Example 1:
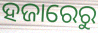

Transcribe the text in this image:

ହଜାରେରୁ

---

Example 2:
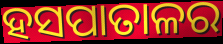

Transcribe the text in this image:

ହସପାତାଳର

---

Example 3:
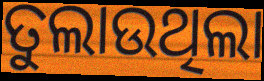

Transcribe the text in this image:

ତୁଲାଉଥିଲା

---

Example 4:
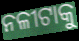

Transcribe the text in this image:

ନଳୀଟାକୁ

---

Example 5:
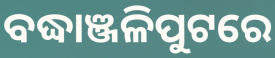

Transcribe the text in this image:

ବଦ୍ଧାଞ୍ଜଳିପୁଟରେ